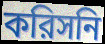
করিসনি